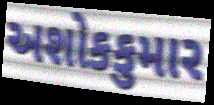
અશોકકુમાર